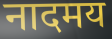
नादमय